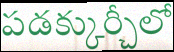
పడక్కుర్చీలో